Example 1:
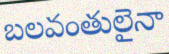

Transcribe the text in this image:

బలవంతులైనా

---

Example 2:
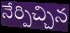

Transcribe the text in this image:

నేర్పిచ్చిన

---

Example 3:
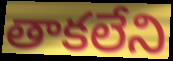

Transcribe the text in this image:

తాకలేని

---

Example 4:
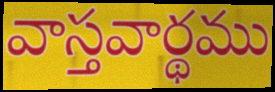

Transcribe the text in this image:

వాస్తవార్థము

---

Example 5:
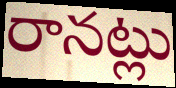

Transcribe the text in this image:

రానట్లు